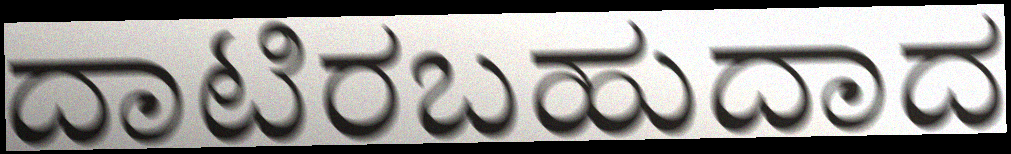
ದಾಟಿರಬಹುದಾದ